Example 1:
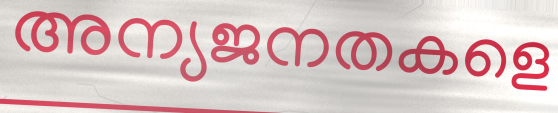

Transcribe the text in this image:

അന്യജനതകളെ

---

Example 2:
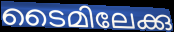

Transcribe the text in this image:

ടൈമിലേക്കു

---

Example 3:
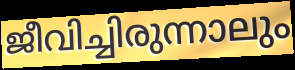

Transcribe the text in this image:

ജീവിച്ചിരുന്നാലും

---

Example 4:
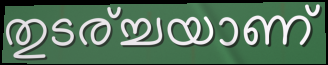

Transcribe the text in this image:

തുടര്ച്ചയാണ്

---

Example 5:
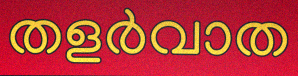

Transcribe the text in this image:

തളർവാത